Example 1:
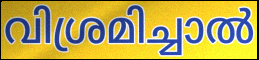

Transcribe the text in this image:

വിശ്രമിച്ചാൽ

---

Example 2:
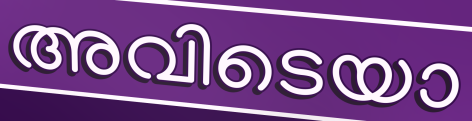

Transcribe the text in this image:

അവിടെയാ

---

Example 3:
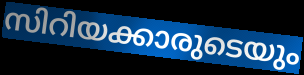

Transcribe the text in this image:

സിറിയക്കാരുടെയും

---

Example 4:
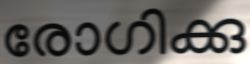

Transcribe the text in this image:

രോഗിക്കു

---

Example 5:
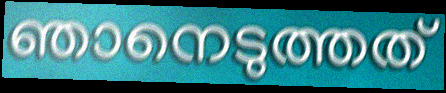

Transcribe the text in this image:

ഞാനെടുത്തത്